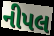
નીપલ